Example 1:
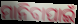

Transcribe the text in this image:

ମାନିବାପାଇଁ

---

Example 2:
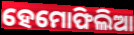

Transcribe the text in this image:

ହେମୋଫିଲିଆ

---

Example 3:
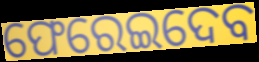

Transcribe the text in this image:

ଫେରେଇଦେବ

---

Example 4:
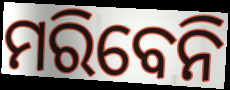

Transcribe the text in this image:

ମରିବେନି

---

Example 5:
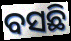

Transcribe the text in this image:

ବସଛି